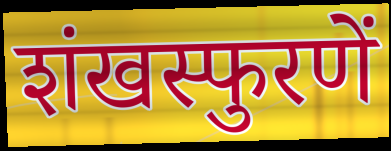
शंखस्फुरणें